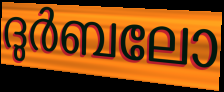
ദുർബലോ